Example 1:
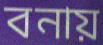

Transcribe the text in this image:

বনায়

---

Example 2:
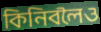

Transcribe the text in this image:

কিনিবলৈও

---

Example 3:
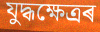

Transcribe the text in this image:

যুদ্ধক্ষেত্ৰৰ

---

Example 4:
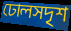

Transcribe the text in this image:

ঢোলসদৃশ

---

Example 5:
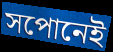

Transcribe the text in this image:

সপোনেই